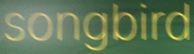
songbird